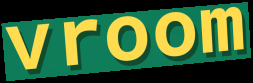
vroom